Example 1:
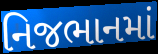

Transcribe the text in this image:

નિજભાનમાં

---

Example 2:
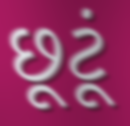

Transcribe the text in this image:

છૂટૂં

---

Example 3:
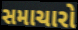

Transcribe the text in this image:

સમાચારો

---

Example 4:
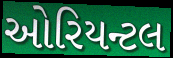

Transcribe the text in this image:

ઓરિયન્ટલ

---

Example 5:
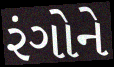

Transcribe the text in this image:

રંગોને